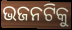
ଭଜନଟିକୁ